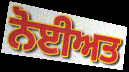
ਨੋਈਅਤ